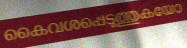
കൈവശപ്പെടുത്തുകയോ